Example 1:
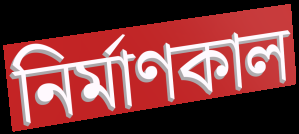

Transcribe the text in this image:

নির্মাণকাল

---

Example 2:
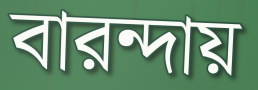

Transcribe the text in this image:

বারন্দায়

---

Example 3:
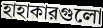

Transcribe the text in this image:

হাহাকারগুলো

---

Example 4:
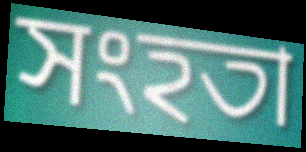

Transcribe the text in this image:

সংহতা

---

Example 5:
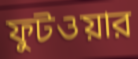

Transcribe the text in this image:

ফুটওয়ার